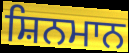
ਸ਼ਿਨਮਾਨ